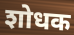
शोधक